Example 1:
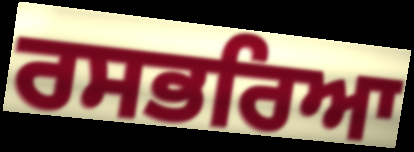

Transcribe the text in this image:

ਰਸਭਰਿਆ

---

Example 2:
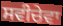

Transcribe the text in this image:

ਸਵੀਚੇਵਾ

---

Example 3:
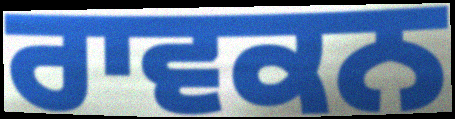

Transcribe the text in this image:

ਰਾਵਕਨ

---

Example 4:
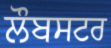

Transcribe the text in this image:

ਲੌਬਸਟਰ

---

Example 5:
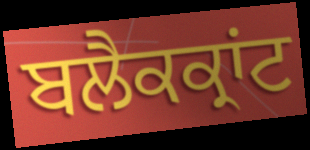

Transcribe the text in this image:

ਬਲੈਕਕ੍ਰਾਂਟ